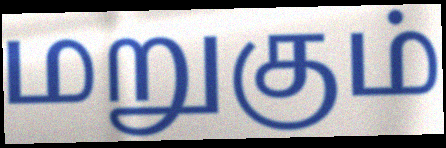
மறுகும்